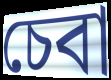
চেবা